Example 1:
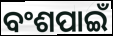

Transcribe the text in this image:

ବଂଶପାଇଁ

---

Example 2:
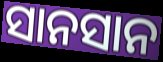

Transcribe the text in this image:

ସାନସାନ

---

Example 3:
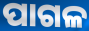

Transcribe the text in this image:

ପାଗଳ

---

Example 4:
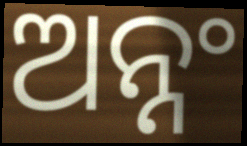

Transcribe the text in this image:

ଅନ୍ନଂ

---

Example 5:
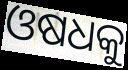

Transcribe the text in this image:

ଓଷଧକୁ